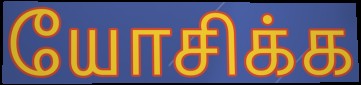
யோசிக்க